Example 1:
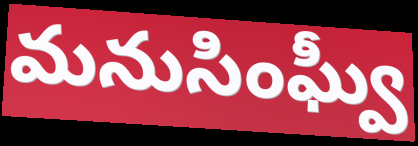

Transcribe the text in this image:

మనుసింఘ్వీ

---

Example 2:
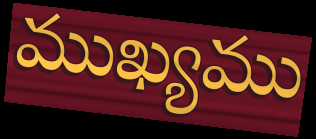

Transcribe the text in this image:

ముఖ్యము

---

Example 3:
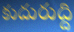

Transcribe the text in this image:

కుదురుద్ది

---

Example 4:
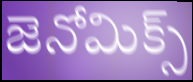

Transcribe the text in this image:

జెనోమిక్స్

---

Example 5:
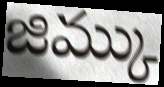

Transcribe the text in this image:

జిమ్కు